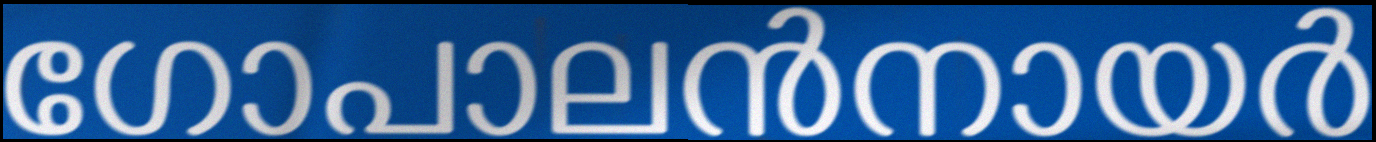
ഗോപാലൻനായർ